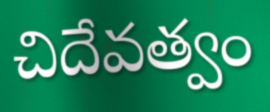
చిదేవత్వం